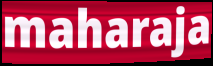
maharaja